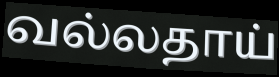
வல்லதாய்